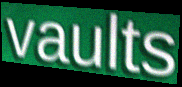
vaults